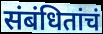
संबंधितांचं